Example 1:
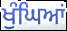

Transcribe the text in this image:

ਖੁੰਘਿਆਂ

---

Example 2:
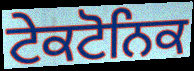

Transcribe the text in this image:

ਟੇਕਟੋਨਿਕ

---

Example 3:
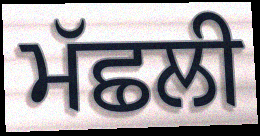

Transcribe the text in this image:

ਮੱਛਲੀ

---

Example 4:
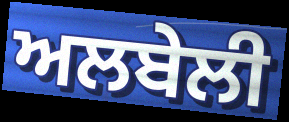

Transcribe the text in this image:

ਅਲਬੇਲੀ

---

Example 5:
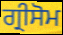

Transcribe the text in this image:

ਗ੍ਰੀਸੋਮ